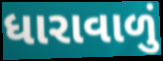
ધારાવાળું